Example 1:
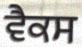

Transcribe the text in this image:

ਵੈਕਸ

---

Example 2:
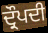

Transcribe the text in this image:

ਦ੍ਰੌਪਦੀ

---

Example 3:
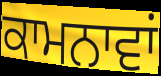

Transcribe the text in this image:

ਕਾਮਨਾਵਾਂ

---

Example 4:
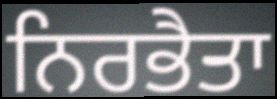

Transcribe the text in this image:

ਨਿਰਭੈਤਾ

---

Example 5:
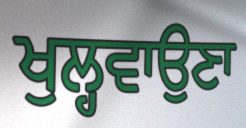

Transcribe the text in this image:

ਖੁਲ੍ਹਵਾਉਣਾ